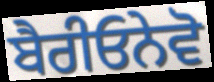
ਬੈਰੀਓਨੇਵੋ